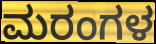
ಮರಂಗಳ